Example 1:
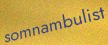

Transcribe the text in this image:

somnambulist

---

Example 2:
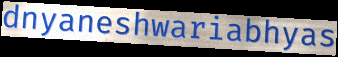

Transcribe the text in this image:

dnyaneshwariabhyas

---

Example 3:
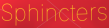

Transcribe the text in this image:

Sphincters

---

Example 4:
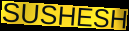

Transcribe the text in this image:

SUSHESH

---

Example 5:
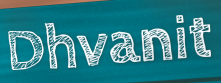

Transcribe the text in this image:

Dhvanit